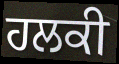
ਹਲਕੀ